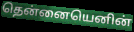
தென்னையெனின்